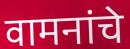
वामनांचे